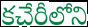
కచేరీలోని